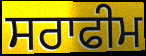
ਸਰਾਫੀਮ